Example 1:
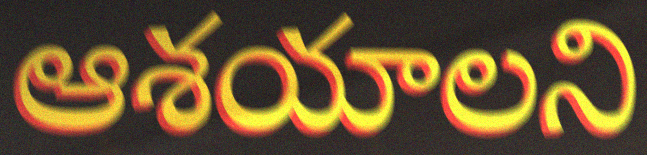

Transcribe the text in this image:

ఆశయాలని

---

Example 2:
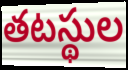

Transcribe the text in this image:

తటస్థుల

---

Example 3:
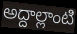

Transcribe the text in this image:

అద్దాల్లాంటి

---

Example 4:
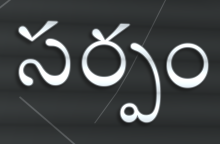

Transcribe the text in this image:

సర్పం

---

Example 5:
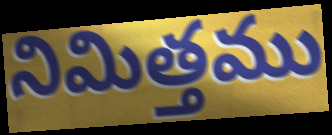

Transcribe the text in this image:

నిమిత్తము